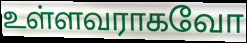
உள்ளவராகவோ